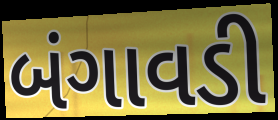
બંગાવડી